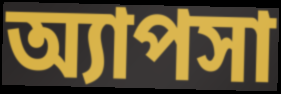
অ্যাপসা